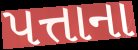
પત્તાના